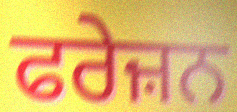
ਫਰੇਜ਼ਨ